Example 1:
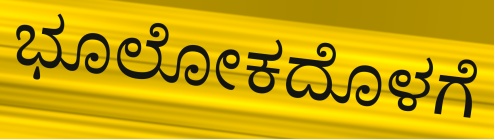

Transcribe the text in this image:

ಭೂಲೋಕದೊಳಗೆ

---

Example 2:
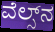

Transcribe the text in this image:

ವೆಲ್ಸ್‌ನ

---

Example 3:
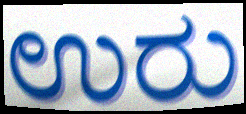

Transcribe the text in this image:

ಉರು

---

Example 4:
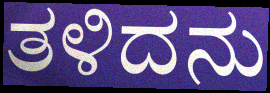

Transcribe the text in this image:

ತಳಿದನು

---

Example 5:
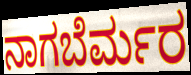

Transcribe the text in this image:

ನಾಗಬೆರ್ಮರ